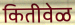
कितीवेळ